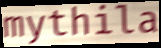
mythila